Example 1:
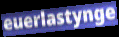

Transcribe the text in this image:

euerlastynge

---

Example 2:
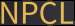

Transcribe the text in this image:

NPCL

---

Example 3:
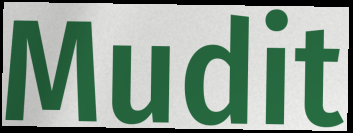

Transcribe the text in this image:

Mudit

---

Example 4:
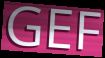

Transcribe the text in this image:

GEF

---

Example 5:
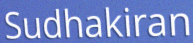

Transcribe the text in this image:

Sudhakiran